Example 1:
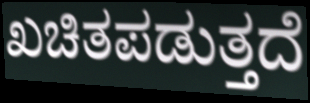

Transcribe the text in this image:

ಖಚಿತಪಡುತ್ತದೆ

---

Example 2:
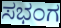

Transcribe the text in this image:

ಸಭಂಗ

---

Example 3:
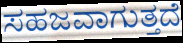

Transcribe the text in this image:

ಸಹಜವಾಗುತ್ತದೆ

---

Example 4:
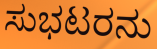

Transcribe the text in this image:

ಸುಭಟರನು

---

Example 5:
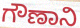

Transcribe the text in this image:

ಗೌಣಾನಿ